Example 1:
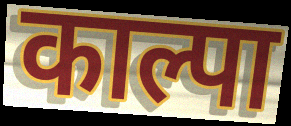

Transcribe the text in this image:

काल्पा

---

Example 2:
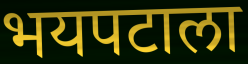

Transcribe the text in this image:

भयपटाला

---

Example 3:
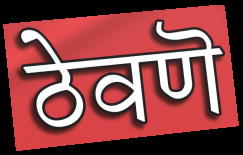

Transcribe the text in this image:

ठेवणॆ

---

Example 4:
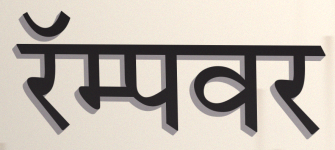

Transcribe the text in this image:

रॅम्पवर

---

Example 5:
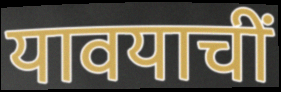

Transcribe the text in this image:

यावयाचीं